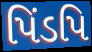
પિંડપિ